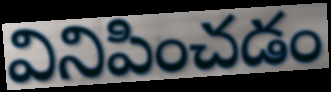
వినిపించడం